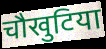
चौखुटिया